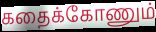
கதைக்கோணும்